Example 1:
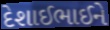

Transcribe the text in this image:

દેશાઈભાઈને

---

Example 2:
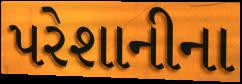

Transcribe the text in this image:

પરેશાનીના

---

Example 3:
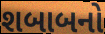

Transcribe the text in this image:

શબાબનો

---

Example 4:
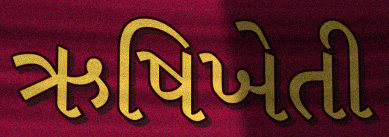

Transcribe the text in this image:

ઋષિખેતી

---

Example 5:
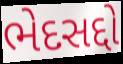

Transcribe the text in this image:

ભેદસદ્દો